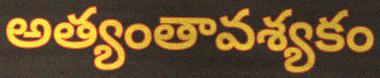
అత్యంతావశ్యకం